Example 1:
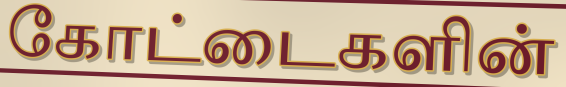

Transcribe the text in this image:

கோட்டைகளின்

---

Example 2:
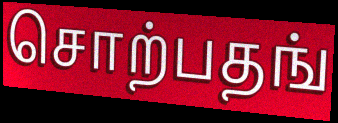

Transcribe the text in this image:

சொற்பதங்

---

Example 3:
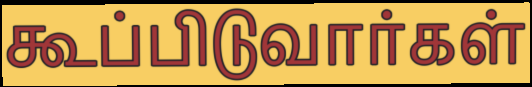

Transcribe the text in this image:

கூப்பிடுவார்கள்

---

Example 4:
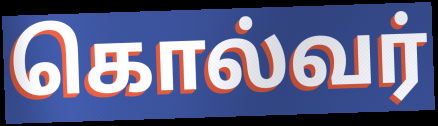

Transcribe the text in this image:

கொல்வர்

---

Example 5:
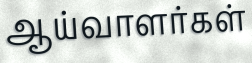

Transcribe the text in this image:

ஆய்வாளர்கள்